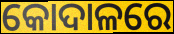
କୋଦାଳରେ